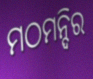
ମଠମନ୍ଦିର